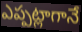
ఎప్పట్లాగానే